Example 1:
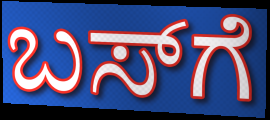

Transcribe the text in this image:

ಬಸ್‍ಗೆ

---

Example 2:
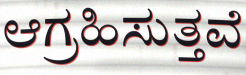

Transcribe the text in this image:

ಆಗ್ರಹಿಸುತ್ತವೆ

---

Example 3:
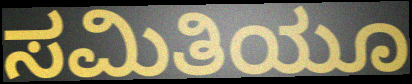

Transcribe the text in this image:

ಸಮಿತಿಯೂ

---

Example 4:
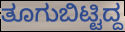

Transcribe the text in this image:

ತೂಗುಬಿಟ್ಟಿದ್ದ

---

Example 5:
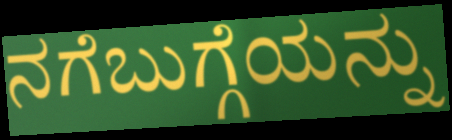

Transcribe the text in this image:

ನಗೆಬುಗ್ಗೆಯನ್ನು